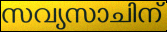
സവ്യസാചിന്